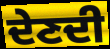
ਦੇਣਦੀ